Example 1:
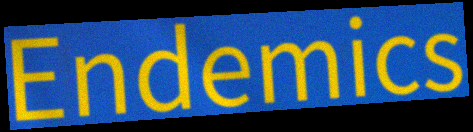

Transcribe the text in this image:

Endemics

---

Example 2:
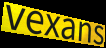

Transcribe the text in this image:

vexans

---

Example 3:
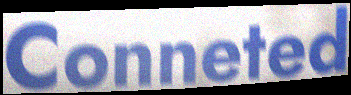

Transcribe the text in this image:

Conneted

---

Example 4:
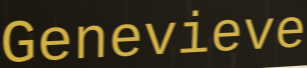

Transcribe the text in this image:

Genevieve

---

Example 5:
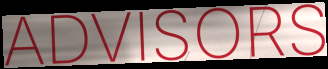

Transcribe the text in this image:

ADVISORS